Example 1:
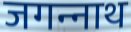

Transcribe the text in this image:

जगन्नाथ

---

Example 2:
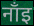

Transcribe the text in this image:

नाँइ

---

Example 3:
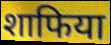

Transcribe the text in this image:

शाफिया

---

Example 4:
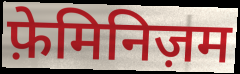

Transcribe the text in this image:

फ़ेमिनिज़म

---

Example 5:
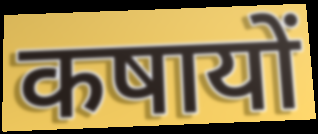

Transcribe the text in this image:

कषायों